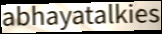
abhayatalkies